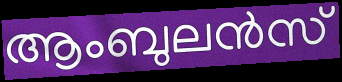
ആംബുലൻസ്